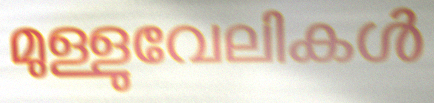
മുള്ളുവേലികൾ